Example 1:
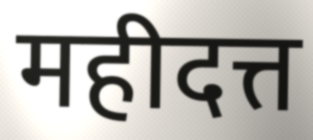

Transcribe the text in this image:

महीदत्त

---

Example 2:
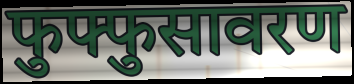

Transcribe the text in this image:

फुफ्फुसावरण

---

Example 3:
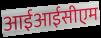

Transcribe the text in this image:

आईआईसीएम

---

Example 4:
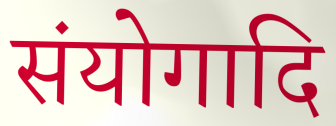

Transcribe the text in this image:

संयोगादि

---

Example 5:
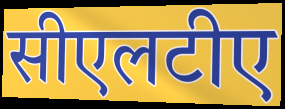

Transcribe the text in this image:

सीएलटीए